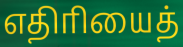
எதிரியைத்